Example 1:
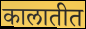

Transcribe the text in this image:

कालातीत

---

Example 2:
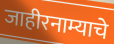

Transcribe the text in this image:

जाहीरनाम्याचे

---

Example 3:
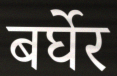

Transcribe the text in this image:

बर्घेर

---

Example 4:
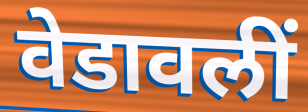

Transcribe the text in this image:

वेडावलीं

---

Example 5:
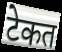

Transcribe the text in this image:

टेकत